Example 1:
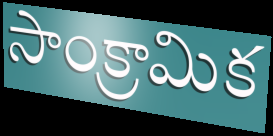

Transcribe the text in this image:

సాంక్రామిక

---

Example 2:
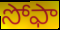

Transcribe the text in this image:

సోఫా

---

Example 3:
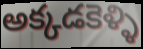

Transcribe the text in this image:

అక్కడకెళ్ళి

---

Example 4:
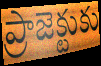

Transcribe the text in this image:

ప్రాజెక్టుకు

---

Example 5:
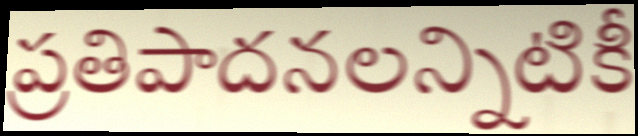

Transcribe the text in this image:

ప్రతిపాదనలన్నిటికీ